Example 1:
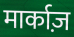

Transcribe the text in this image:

मार्काज़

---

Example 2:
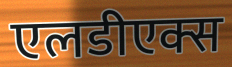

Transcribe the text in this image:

एलडीएक्स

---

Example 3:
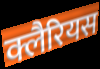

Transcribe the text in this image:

क्लैरियस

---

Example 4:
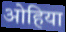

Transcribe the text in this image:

ओहिया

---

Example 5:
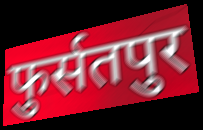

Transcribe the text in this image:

फुर्सतपुर